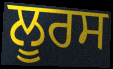
ਲੂਰਸ